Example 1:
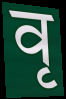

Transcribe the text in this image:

वृ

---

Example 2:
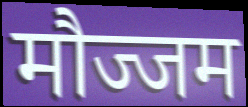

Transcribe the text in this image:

मौज्जम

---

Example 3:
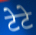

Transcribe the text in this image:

टेटे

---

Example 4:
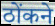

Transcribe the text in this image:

ठोंकने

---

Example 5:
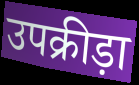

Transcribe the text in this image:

उपक्रीड़ा